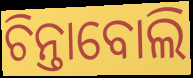
ଚିନ୍ତାବୋଲି